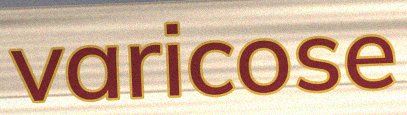
varicose